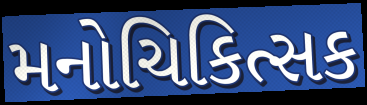
મનોચિકિત્સક